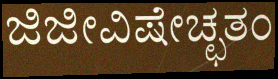
ಜಿಜೀವಿಷೇಚ್ಛತಂ